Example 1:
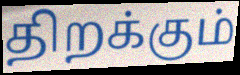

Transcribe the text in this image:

திறக்கும்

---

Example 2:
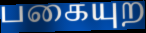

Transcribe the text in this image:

பகையுற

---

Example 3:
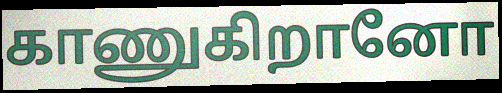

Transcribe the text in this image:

காணுகிறானோ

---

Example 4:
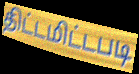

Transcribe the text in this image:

திட்டமிட்டபடி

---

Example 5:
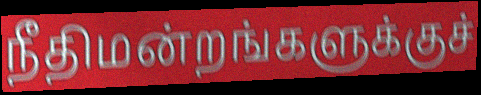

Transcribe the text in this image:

நீதிமன்றங்களுக்குச்